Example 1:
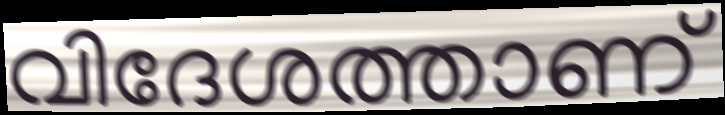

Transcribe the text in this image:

വിദേശത്താണ്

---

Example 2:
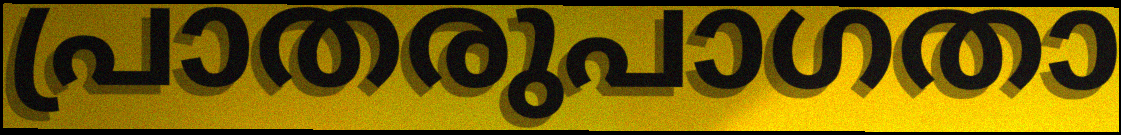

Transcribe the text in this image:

പ്രാതരുപാഗതാ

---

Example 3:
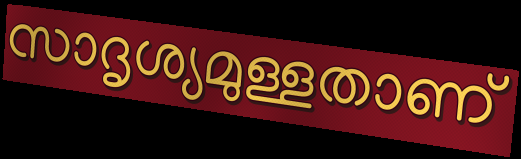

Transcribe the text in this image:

സാദൃശ്യമുള്ളതാണ്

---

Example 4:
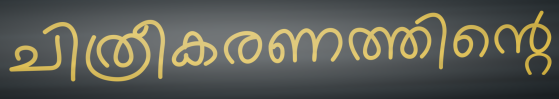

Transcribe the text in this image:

ചിത്രീകരണത്തിന്റെ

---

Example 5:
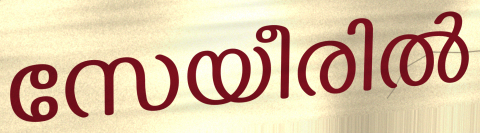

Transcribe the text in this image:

സേയീരിൽ